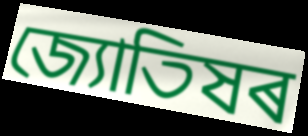
জ্যোতিষৰ